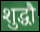
शुद्धौ